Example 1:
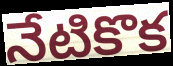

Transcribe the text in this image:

నేటికొక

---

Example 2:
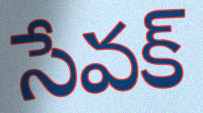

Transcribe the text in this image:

సేవక్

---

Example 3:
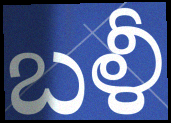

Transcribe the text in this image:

బళీ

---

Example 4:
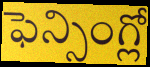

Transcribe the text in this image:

ఫెన్సింగ్లో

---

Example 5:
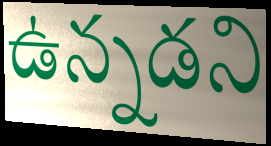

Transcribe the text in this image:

ఉన్నడని